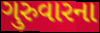
ગુરુવારના